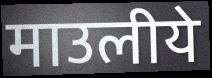
माउलीये